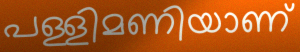
പള്ളിമണിയാണ്